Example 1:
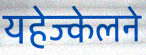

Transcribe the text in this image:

यहेज्केलने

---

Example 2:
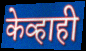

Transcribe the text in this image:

केव्हाही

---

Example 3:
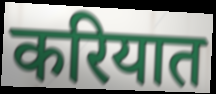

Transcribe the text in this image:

करियात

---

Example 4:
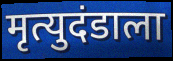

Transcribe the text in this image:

मृत्युदंडाला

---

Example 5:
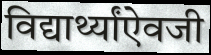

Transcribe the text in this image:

विद्यार्थ्यांऐवजी